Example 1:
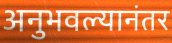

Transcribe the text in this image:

अनुभवल्यानंतर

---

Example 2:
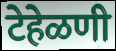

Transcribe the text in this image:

टेहेळणी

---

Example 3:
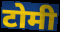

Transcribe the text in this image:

टोमी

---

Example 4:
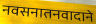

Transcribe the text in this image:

नवसनातनवादाने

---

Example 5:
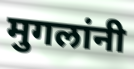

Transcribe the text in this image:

मुगलांनी